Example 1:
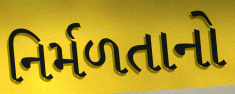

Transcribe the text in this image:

નિર્મળતાનો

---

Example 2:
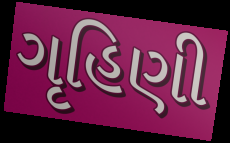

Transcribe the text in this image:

ગૃહિણી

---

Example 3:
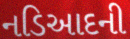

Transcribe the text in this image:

નડિઆદની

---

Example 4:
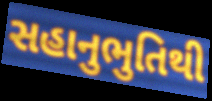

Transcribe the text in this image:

સહાનુભુતિથી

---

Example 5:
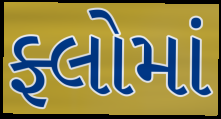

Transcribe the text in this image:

ફ્લોમાં